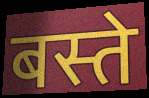
बस्ते